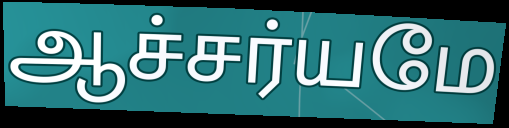
ஆச்சர்யமே